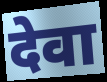
देवा